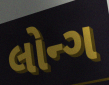
લોન્ગ